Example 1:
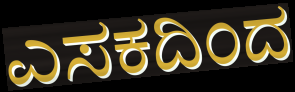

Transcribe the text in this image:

ಎಸಕದಿಂದ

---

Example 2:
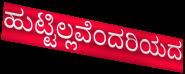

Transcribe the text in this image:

ಹುಟ್ಟಿಲ್ಲವೆಂದರಿಯದ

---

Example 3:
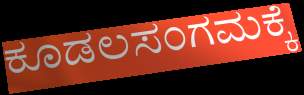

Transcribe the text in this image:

ಕೂಡಲಸಂಗಮಕ್ಕೆ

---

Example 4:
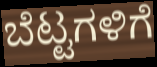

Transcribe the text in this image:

ಬೆಟ್ಟಗಳಿಗೆ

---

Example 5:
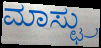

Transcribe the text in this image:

ಮಾಸ್ಟ್ರು